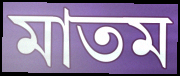
মাতম